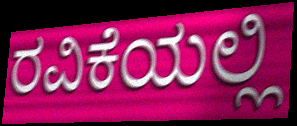
ರವಿಕೆಯಲ್ಲಿ